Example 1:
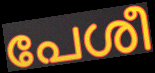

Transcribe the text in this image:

പേശീ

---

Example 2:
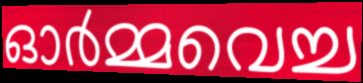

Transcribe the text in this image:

ഓർമ്മവെച്ച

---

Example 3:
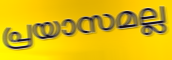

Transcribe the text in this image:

പ്രയാസമല്ല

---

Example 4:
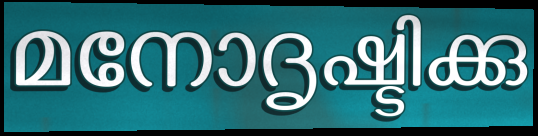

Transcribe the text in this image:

മനോദൃഷ്ടിക്കു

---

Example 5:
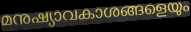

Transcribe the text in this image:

മനുഷ്യാവകാശങ്ങളെയും